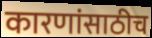
कारणांसाठीच